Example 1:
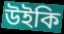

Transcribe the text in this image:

উইকি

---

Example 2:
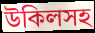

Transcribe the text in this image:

উকিলসহ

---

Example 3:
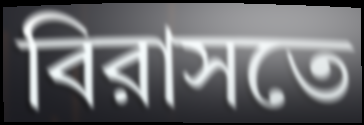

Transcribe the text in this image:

বিরাসতে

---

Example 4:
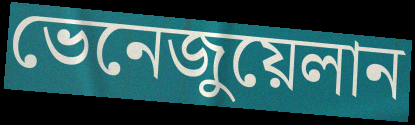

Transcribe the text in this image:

ভেনেজুয়েলান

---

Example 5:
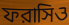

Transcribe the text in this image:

ফরাসিও